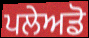
ਪਲੇਅਡੋ